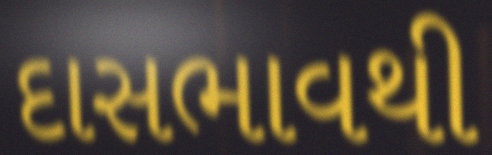
દાસભાવથી